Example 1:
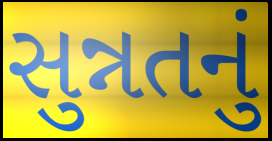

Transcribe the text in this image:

સુન્નતનું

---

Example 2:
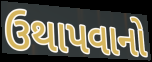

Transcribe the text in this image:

ઉથાપવાનો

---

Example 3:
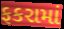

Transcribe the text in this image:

ફકરામાં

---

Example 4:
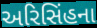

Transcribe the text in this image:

અરિસિંહના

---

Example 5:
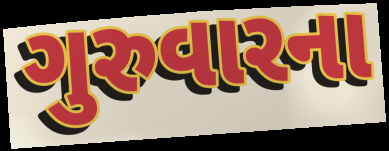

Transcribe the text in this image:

ગુરુવારના